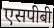
एसपीबी